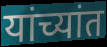
यांच्यांत